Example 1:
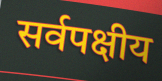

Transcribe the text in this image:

सर्वपक्षीय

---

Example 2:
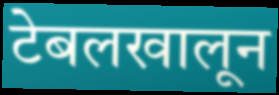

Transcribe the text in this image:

टेबलखालून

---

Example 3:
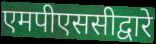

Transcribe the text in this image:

एमपीएससीद्वारे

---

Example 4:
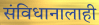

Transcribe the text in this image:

संविधानालाही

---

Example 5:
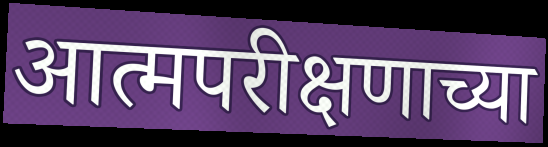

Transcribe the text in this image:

आत्मपरीक्षणाच्या